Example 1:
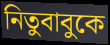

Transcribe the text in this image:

নিতুবাবুকে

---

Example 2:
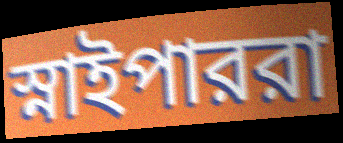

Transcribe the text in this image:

স্নাইপাররা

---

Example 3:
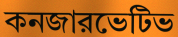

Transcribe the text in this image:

কনজারভেটিভ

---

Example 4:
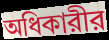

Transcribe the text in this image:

অধিকারীর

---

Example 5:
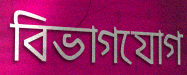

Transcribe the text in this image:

বিভাগযোগ